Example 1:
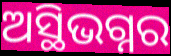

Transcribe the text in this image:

ଅସ୍ଥିଭଗ୍ନର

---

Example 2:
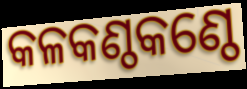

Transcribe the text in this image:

କଳକଣ୍ଠକଣ୍ଠେ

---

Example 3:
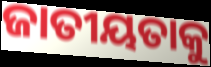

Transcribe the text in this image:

ଜାତୀୟତାକୁ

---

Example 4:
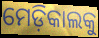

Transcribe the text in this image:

ମେଡ଼ିକାଲକୁ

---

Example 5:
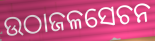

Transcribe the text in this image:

ଉଠାଜଳସେଚନ